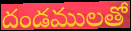
దండములతో